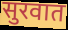
सुरवात